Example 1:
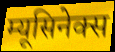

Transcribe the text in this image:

म्यूसिनेक्स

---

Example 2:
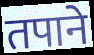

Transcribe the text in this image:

तपाने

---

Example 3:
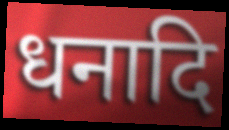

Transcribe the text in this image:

धनादि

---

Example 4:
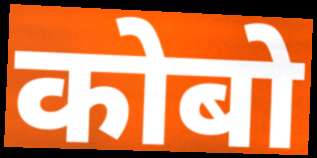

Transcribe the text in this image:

कोबो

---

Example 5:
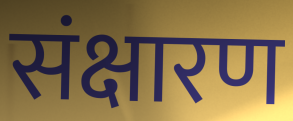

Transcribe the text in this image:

संक्षारण